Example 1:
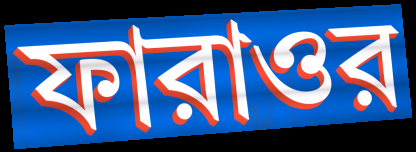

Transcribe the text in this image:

ফারাওর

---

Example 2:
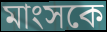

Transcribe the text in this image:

মাংসকে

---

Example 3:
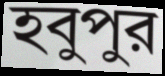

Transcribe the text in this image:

হবুপুর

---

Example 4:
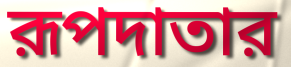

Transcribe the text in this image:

রূপদাতার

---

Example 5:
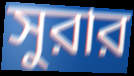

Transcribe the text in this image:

সুরার